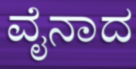
ವೈನಾದ